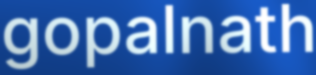
gopalnath